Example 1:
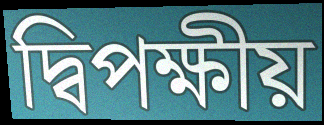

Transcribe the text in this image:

দ্বিপক্ষীয়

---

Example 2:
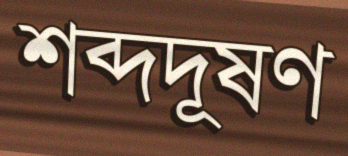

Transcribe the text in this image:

শব্দদূষণ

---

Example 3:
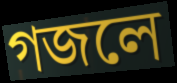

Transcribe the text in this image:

গজলে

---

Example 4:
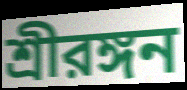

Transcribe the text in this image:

শ্রীরঙ্গন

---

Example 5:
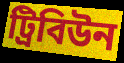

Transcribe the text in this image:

ট্রিবিউন